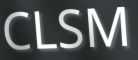
CLSM